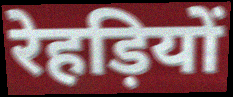
रेहड़ियों